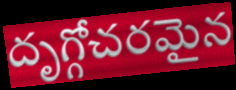
దృగ్గోచరమైన